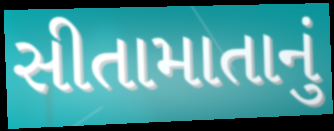
સીતામાતાનું